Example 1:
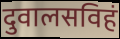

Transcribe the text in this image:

दुवालसविहं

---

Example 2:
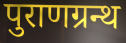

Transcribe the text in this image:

पुराणग्रन्थ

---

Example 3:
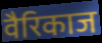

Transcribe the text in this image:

वैरिकाज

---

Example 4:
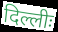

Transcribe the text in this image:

दिल्लीः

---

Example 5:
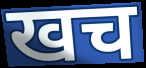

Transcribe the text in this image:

खच